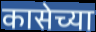
कासेच्या